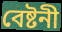
বেষ্টনী